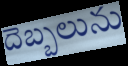
దెబ్బలును